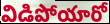
విడిపోయారో